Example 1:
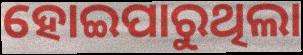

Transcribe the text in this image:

ହୋଇପାରୁଥିଲା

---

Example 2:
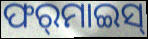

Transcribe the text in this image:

ଫର୍‌ମାଇସ୍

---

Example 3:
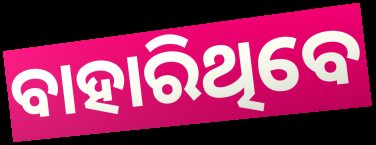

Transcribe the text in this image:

ବାହାରିଥିବେ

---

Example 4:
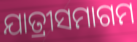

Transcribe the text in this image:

ଯାତ୍ରୀସମାଗମ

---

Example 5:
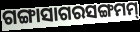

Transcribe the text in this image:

ଗଙ୍ଗାସାଗରସଙ୍ଗମମ୍